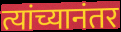
त्यांच्यानंतर